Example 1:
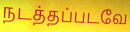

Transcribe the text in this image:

நடத்தப்படவே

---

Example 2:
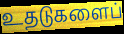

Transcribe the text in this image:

உதடுகளைப்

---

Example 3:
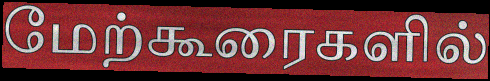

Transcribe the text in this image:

மேற்கூரைகளில்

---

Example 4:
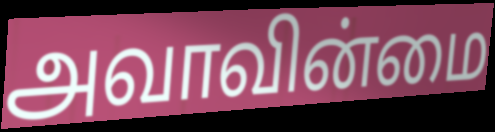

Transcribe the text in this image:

அவாவின்மை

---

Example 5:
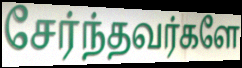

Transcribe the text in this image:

சேர்ந்தவர்களே